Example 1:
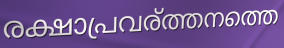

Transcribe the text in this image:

രക്ഷാപ്രവര്ത്തനത്തെ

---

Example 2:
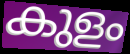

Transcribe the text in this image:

കുളം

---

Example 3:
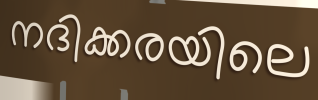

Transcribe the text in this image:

നദിക്കരയിലെ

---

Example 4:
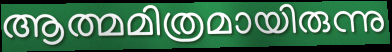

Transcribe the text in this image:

ആത്മമിത്രമായിരുന്നു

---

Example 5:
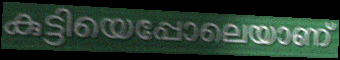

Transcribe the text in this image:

കുട്ടിയെപ്പോലെയാണ്